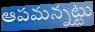
ఆపమన్నట్టు